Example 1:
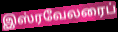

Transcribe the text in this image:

இஸ்ரவேலரைப்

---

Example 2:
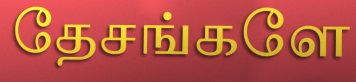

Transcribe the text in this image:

தேசங்களே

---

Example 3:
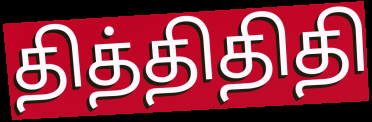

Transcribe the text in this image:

தித்திதிதி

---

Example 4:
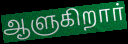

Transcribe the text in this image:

ஆளுகிறார்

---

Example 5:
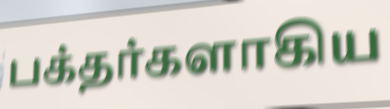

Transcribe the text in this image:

பக்தர்களாகிய